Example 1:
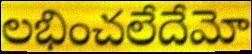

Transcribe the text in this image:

లభించలేదేమో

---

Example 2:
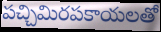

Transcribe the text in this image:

పచ్చిమిరపకాయలతో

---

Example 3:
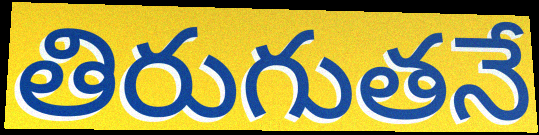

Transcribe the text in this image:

తిరుగుతనే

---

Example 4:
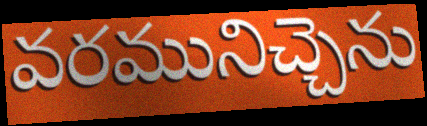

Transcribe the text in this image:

వరమునిచ్చెను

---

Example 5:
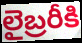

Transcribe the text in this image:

లైబ్రరీకి